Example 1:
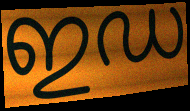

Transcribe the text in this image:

ഇഡ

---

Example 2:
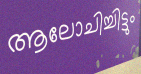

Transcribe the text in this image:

ആലോചിച്ചിട്ടും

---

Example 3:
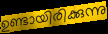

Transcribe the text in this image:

ഉണ്ടായിരിക്കുന്നു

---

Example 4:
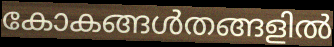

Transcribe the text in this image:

കോകങ്ങൾതങ്ങളിൽ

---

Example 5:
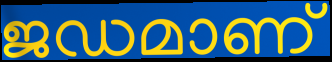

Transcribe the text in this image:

ജഡമാണ്